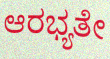
ಆರಭ್ಯತೇ